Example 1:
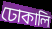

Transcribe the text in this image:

ঢোকালি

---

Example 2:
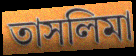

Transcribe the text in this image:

তাসলিমা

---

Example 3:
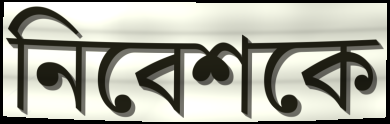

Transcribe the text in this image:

নিবেশকে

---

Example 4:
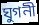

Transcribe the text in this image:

ঘুগনী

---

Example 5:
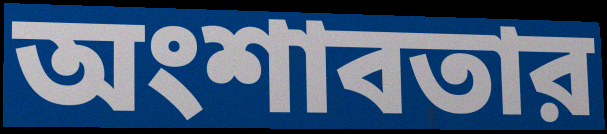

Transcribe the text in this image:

অংশাবতার